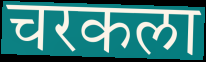
चरकला